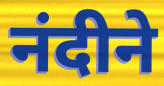
नंदीने